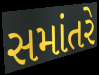
સમાંતરે